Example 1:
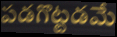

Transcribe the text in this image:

పడగొట్టడమే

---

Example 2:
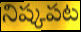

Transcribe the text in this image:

నిష్కపట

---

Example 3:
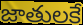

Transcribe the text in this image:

జాతులకే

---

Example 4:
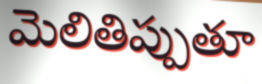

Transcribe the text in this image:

మెలితిప్పుతూ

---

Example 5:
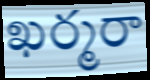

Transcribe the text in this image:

ఖర్మరా